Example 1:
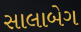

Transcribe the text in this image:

સાલાબેગ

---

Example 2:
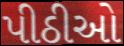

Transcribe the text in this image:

પીઠીઓ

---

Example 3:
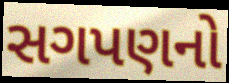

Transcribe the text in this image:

સગપણનો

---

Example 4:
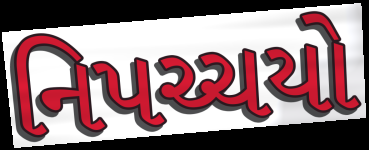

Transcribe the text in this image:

નિપચ્ચયો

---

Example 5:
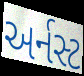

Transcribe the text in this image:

અર્નસ્ટ